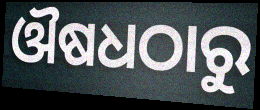
ଔଷଧଠାରୁ